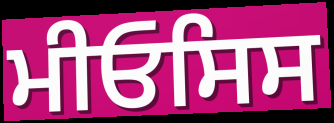
ਮੀਓਸਿਸ